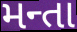
મન્તા